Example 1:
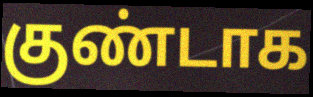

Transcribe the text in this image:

குண்டாக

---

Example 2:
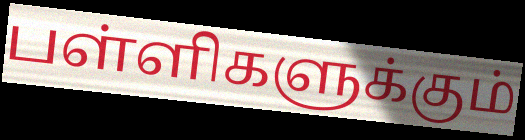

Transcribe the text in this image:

பள்ளிகளுக்கும்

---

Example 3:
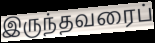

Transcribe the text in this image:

இருந்தவரைப்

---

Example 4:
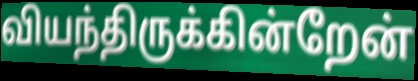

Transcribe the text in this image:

வியந்திருக்கின்றேன்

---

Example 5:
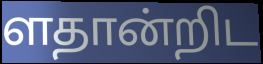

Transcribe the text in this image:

ளதான்றிட